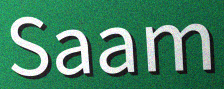
Saam